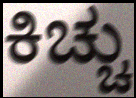
ಕಿಚ್ಚು